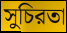
সুচিরতা